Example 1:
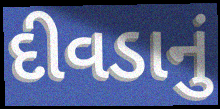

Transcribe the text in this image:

દીવડાનું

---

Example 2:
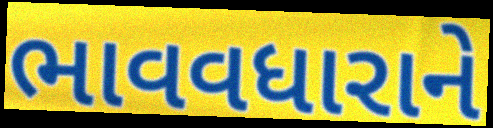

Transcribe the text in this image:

ભાવવધારાને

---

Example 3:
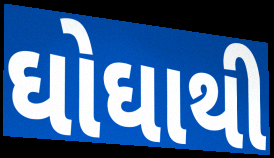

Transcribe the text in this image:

ઘોઘાથી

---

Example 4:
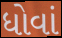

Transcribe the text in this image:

ધોવાં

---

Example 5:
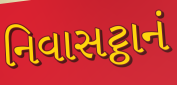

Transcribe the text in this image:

નિવાસટ્ઠાનં